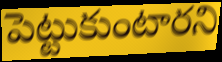
పెట్టుకుంటారని